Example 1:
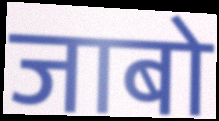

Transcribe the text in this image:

जाबो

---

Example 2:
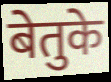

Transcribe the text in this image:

बेतुके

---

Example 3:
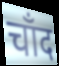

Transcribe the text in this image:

चाँद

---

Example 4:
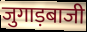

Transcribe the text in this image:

जुगाड़बाजी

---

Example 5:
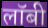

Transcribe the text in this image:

लॉबी